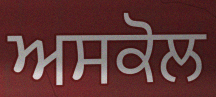
ਅਸਕੋਲ